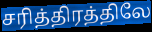
சரித்திரத்திலே